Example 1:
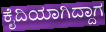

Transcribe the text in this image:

ಕೈದಿಯಾಗಿದ್ದಾಗ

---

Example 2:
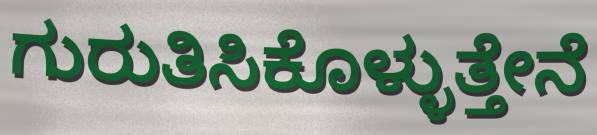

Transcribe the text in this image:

ಗುರುತಿಸಿಕೊಳ್ಳುತ್ತೇನೆ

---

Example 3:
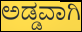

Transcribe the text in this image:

ಅಡ್ಡವಾಗಿ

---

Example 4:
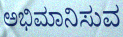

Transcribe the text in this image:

ಅಭಿಮಾನಿಸುವ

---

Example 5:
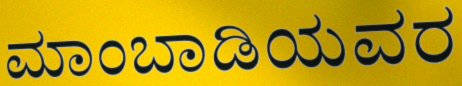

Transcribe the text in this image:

ಮಾಂಬಾಡಿಯವರ